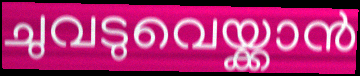
ചുവടുവെയ്ക്കാൻ